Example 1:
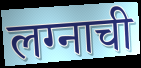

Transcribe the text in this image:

लग्नाची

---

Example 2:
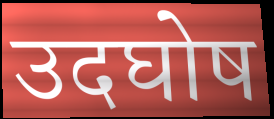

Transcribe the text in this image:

उदघोष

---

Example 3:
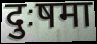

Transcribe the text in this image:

दुःषमा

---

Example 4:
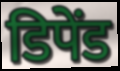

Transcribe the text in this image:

डिपेंड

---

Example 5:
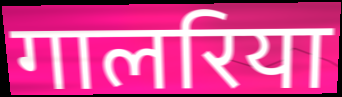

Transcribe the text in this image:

गालरिया